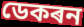
ডেকৰন